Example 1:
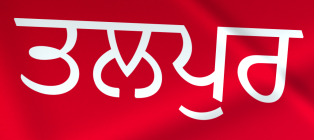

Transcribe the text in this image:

ਤਲਪੁਰ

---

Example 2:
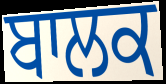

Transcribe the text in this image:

ਬਾਲਕ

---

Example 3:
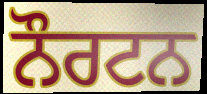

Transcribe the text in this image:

ਨੌਰਟਨ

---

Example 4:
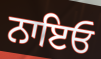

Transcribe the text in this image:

ਨਾਇਓ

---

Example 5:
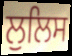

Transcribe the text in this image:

ਲੁਲਿਸ